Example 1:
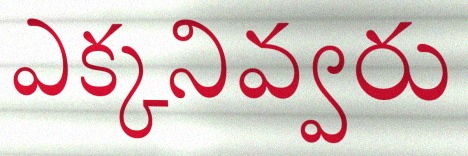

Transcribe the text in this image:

ఎక్కనివ్వరు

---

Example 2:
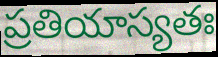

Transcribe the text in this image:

ప్రతియాస్యతః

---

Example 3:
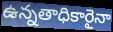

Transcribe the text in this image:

ఉన్నతాధికారైనా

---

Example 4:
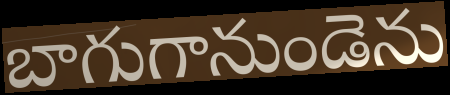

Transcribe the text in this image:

బాగుగానుండెను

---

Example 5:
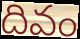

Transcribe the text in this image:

దివం